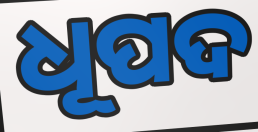
ଧୂପଦ